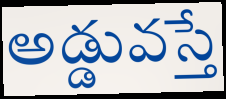
అడ్డువస్తే